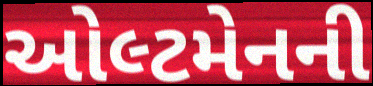
ઓલ્ટમેનની